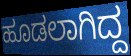
ಹೂಡಲಾಗಿದ್ದ